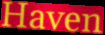
Haven